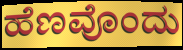
ಹೆಣವೊಂದು